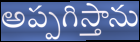
అప్పగిస్తాను